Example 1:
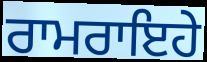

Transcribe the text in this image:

ਰਾਮਰਾਇਹੇ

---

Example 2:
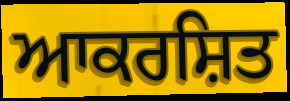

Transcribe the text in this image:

ਆਕਰਸ਼ਿਤ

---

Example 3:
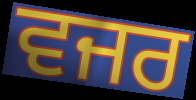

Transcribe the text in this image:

ਵਜਰ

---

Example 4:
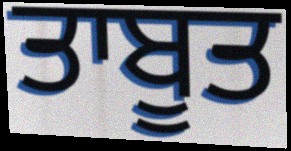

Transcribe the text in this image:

ਤਾਬੂਤ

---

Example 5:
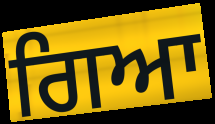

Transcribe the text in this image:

ਗਿਆ